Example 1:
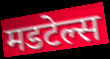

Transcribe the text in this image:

मडटेल्स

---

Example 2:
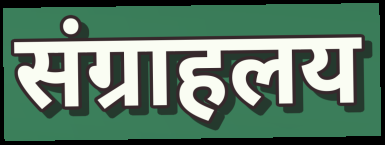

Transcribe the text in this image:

संग्राहलय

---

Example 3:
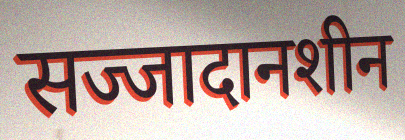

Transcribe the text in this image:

सज्जादानशीन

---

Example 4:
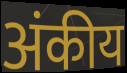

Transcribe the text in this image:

अंकीय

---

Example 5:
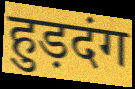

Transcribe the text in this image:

हुड़दंग